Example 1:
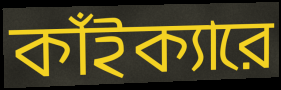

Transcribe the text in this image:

কাঁইক্যারে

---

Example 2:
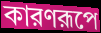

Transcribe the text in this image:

কারণরূপে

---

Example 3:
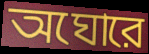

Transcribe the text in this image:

অঘোরে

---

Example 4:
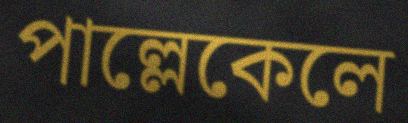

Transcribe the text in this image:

পাল্লেকেলে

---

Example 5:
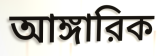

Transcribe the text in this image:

আঙ্গারিক